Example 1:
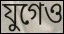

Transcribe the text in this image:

যুগেও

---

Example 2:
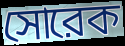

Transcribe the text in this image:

সোরেক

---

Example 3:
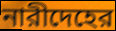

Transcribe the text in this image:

নারীদেহের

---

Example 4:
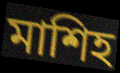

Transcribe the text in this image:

মাশিহ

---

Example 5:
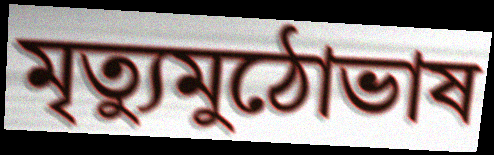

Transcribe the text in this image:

মৃত্যুমুঠোভাষ